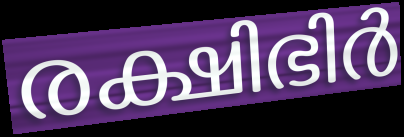
രക്ഷിഭിർ